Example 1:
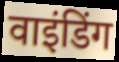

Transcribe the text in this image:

वाइंडिंग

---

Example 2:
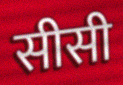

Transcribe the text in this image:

सीसी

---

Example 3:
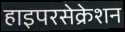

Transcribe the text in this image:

हाइपरसेक्रेशन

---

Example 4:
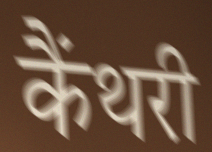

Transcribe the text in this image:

कैंथरी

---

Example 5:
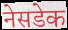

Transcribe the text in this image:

नेसडेक